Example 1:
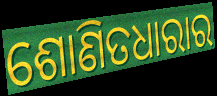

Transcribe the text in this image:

ଶୋଣିତଧାରାର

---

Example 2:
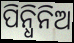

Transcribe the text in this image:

ପିନ୍ଧିନିଅ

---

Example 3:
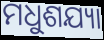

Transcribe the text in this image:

ମଧୁଶଯ୍ୟା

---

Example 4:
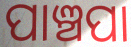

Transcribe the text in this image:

ପାଞ୍ଚପା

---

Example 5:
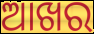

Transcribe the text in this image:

ଆଖର